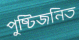
পুষ্টিজনিত